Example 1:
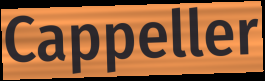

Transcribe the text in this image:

Cappeller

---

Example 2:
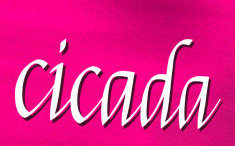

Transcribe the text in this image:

cicada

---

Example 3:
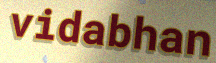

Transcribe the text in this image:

vidabhan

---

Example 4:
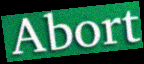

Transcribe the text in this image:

Abort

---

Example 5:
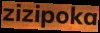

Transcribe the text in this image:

zizipoka